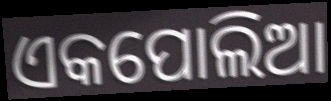
ଏକପୋଲିଆ